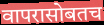
वापरासोबतच